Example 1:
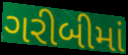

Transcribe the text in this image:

ગરીબીમાં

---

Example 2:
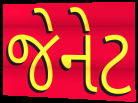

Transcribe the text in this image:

જેનેટ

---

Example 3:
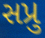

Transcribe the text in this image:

સપ્રુ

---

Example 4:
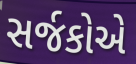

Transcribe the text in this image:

સર્જકોએ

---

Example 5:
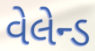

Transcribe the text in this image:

વેલેન્ડ